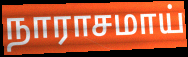
நாராசமாய்